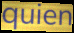
quien